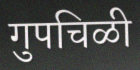
गुपचिळी